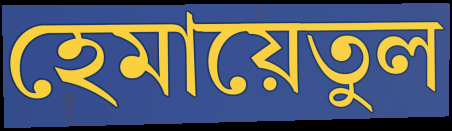
হেমায়েতুল